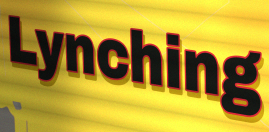
Lynching